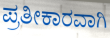
ಪ್ರತೀಕಾರವಾಗಿ